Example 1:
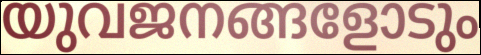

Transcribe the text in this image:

യുവജനങ്ങളോടും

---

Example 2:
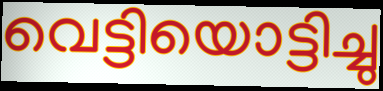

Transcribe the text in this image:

വെട്ടിയൊട്ടിച്ചു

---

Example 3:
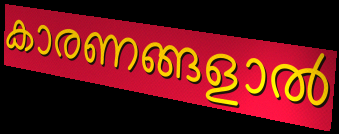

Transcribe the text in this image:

കാരണങ്ങളാൽ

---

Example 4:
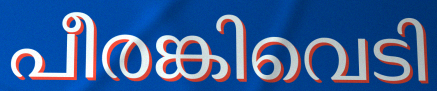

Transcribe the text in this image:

പീരങ്കിവെടി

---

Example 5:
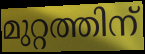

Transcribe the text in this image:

മുറ്റത്തിന്